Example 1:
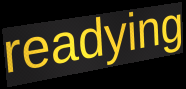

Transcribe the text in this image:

readying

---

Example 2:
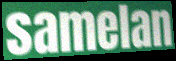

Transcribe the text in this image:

samelan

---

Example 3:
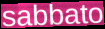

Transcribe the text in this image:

sabbato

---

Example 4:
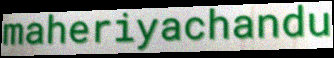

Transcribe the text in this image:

maheriyachandu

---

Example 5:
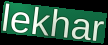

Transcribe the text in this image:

lekhar